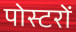
पोस्‍टरों